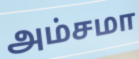
அம்சமா